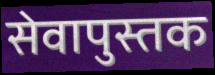
सेवापुस्तक